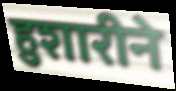
हुशारीने